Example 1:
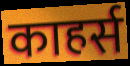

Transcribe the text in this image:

काहर्स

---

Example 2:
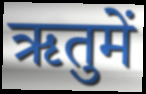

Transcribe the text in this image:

ऋतुमें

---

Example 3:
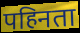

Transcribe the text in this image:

पहिनता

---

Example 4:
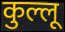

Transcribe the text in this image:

कुल्लू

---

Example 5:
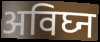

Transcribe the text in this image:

अविघ्न